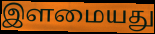
இளமையது